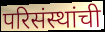
परिसंस्थांची